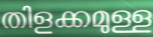
തിളക്കമുള്ള